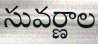
సువర్ణాల